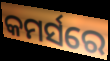
କମର୍ସରେ